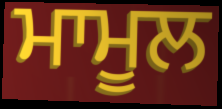
ਮਾਮੂਲ